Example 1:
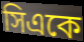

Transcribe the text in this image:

সিএকে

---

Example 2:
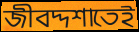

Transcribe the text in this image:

জীবদ্দশাতেই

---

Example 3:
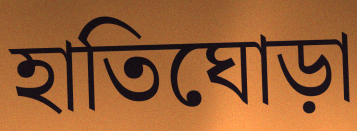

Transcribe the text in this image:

হাতিঘোড়া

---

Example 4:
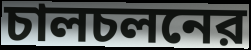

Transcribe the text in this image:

চালচলনের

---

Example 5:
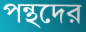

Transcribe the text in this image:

পন্থদের